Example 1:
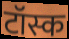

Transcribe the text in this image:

टॉस्‍क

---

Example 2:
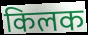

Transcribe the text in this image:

किलक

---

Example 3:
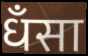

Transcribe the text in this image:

धँसा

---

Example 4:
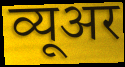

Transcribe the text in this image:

व्यूअर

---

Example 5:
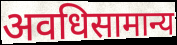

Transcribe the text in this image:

अवधिसामान्य